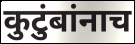
कुटुंबांनाच